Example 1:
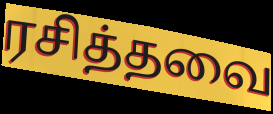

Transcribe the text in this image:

ரசித்தவை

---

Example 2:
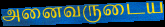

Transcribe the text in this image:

அனைவருடைய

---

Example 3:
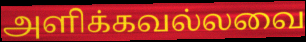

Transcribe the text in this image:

அளிக்கவல்லவை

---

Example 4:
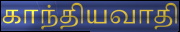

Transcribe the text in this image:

காந்தியவாதி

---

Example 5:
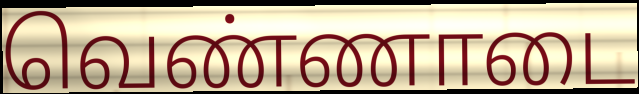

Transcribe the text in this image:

வெண்ணாடை